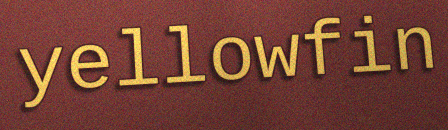
yellowfin